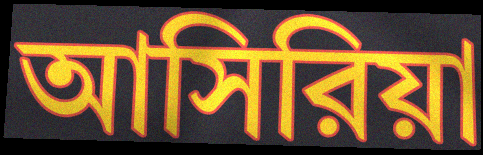
আসিরিয়া